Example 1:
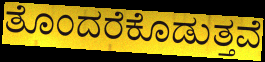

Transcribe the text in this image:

ತೊಂದರೆಕೊಡುತ್ತವೆ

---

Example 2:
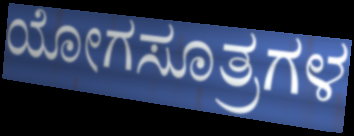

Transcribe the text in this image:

ಯೋಗಸೂತ್ರಗಳ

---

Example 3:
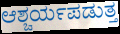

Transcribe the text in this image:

ಆಶ್ಚರ್ಯಪಡುತ್ತ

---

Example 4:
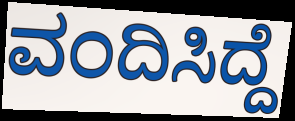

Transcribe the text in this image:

ವಂದಿಸಿದ್ದೆ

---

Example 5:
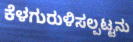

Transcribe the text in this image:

ಕೆಳಗುರುಳಿಸಲ್ಪಟ್ಟನು